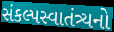
સંકલ્પસ્વાતંત્ર્યનો